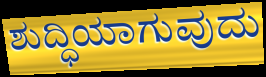
ಶುದ್ಧಿಯಾಗುವುದು